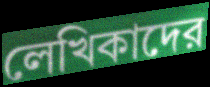
লেখিকাদের